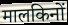
मालकिनों